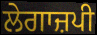
ਲੇਗਾਜ਼ਪੀ